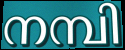
നമ്പി